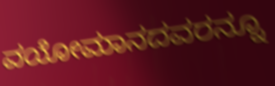
ವಯೋಮಾನದವರನ್ನೂ